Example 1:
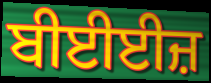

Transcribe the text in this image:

ਬੀਈਈਜ਼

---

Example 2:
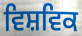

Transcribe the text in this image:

ਵਿਸ਼ਵਿਕ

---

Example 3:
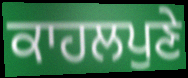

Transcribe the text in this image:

ਕਾਹਲਪੁਣੇ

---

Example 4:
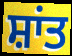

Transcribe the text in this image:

ਸ਼ਾਂਤ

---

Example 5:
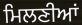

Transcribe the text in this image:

ਮਿਲਣੀਆਂ